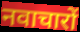
नवाचारों